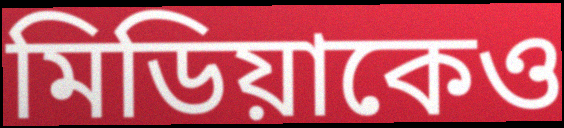
মিডিয়াকেও